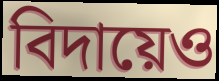
বিদায়েও